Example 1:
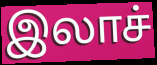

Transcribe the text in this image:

இலாச்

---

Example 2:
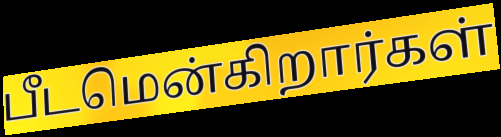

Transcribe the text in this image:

பீடமென்கிறார்கள்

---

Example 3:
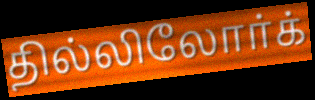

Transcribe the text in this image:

தில்லிலோர்க்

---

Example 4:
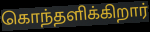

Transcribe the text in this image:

கொந்தளிக்கிறார்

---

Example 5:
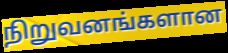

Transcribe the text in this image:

நிறுவனங்களான